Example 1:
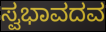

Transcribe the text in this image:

ಸ್ವಭಾವದವ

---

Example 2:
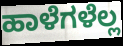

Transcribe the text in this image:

ಹಾಳೆಗಳೆಲ್ಲ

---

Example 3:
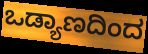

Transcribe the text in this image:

ಒಡ್ಯಾಣದಿಂದ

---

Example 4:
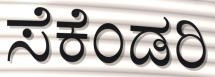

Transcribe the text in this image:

ಸೆಕೆಂಡರಿ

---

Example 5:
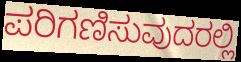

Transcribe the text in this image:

ಪರಿಗಣಿಸುವುದರಲ್ಲಿ